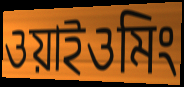
ওয়াইওমিং